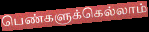
பெண்களுக்கெல்லாம்